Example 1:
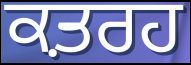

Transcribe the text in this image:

ਕ਼ਤਰਹ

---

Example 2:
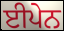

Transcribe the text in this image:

ਈਪੇਨ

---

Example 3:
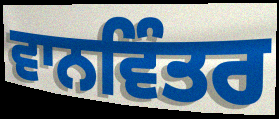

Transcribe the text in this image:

ਵਾਨਵਿੰਤਰ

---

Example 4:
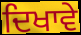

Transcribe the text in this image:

ਦਿਖਾਵੇ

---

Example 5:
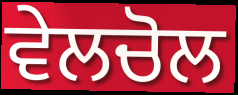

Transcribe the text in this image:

ਵੇਲਚੋਲ